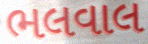
ભલવાલ